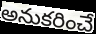
అనుకరించే